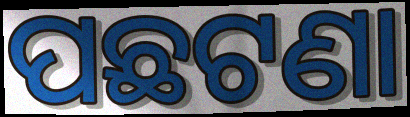
ପଛଟଣା